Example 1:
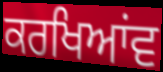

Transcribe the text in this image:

ਕਰਖਿਆਂਵ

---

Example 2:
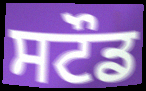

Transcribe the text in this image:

ਸਟੌਡ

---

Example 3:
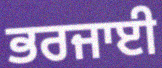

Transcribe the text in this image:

ਭਰਜਾਈ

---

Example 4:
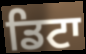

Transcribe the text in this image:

ਡਿਟਾ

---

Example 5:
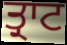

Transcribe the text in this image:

ਤ੍ਰਾਟ